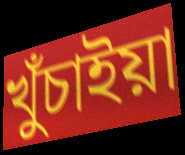
খুঁচাইয়া